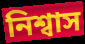
নিশ্বাস